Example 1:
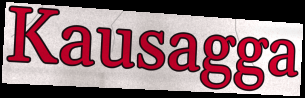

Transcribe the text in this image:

Kausagga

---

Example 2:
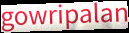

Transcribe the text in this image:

gowripalan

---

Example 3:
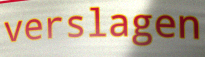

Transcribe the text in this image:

verslagen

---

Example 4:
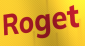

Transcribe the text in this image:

Roget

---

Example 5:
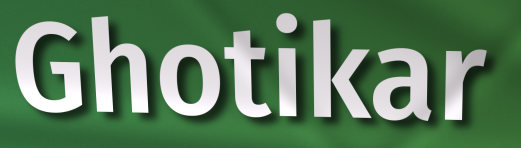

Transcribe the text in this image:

Ghotikar